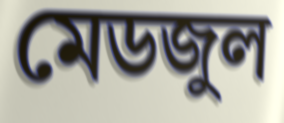
মেডজুল